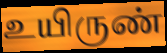
உயிருண்